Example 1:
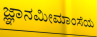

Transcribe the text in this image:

ಜ್ಞಾನಮೀಮಾಂಸೆಯ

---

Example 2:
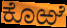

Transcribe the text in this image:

ಕೊಱೆ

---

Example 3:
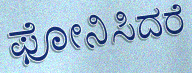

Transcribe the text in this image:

ಫೋನಿಸಿದರೆ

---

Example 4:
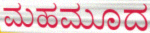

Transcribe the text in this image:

ಮಹಮೂದ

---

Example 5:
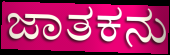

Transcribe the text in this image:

ಜಾತಕನು